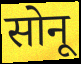
सोनू